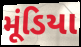
મૂંડિયા